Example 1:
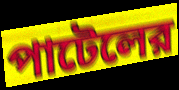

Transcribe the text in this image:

পাটেলের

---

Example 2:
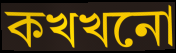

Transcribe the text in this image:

কখখনো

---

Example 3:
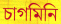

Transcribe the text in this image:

চাগমিনি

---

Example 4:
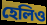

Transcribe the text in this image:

হেলিও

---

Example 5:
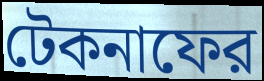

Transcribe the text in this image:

টেকনাফের